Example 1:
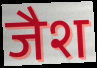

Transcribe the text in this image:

जैश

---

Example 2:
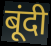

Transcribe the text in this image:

बूंदी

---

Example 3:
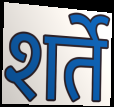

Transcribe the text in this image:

शर्ते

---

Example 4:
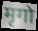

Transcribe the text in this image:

मृगो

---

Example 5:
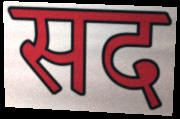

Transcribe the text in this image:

सद